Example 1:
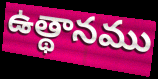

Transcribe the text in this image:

ఉత్థానము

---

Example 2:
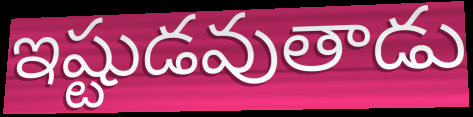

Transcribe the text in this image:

ఇష్టుడవుతాడు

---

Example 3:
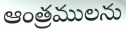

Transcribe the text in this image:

ఆంత్రములను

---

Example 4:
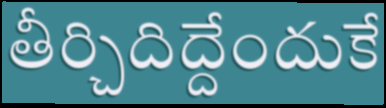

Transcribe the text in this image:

తీర్చిదిద్దేందుకే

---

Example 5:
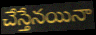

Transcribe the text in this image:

చేస్తేనయినా